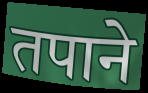
तपाने